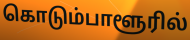
கொடும்பாளூரில்